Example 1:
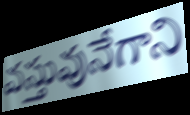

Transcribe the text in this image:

వస్తువునేగాని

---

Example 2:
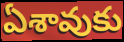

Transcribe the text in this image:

ఏశావుకు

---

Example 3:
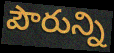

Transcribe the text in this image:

పౌరున్ని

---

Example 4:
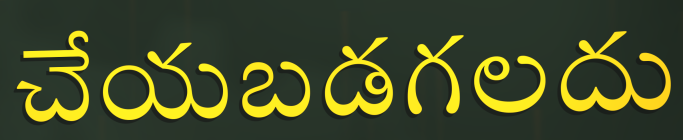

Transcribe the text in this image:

చేయబడగలదు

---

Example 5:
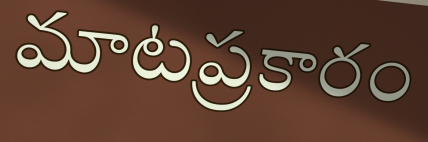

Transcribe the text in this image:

మాటప్రకారం